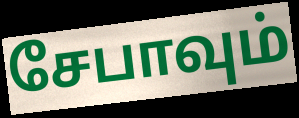
சேபாவும்